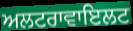
ਅਲਟਰਾਵਾਇਲਟ